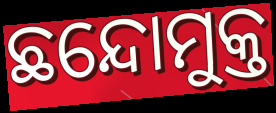
ଛନ୍ଦୋମୁକ୍ତ